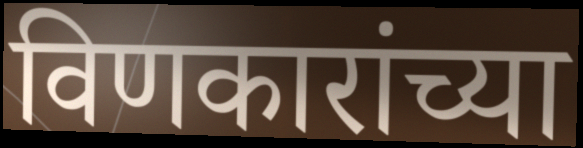
विणकारांच्या